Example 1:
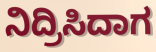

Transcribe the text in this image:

ನಿದ್ರಿಸಿದಾಗ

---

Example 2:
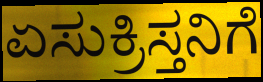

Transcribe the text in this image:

ಏಸುಕ್ರಿಸ್ತನಿಗೆ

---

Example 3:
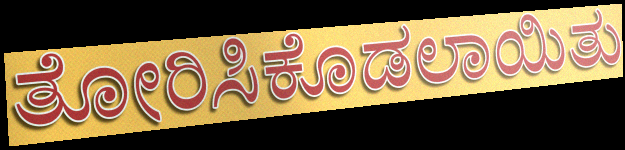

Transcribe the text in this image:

ತೋರಿಸಿಕೊಡಲಾಯಿತು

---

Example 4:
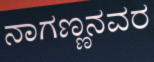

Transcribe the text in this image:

ನಾಗಣ್ಣನವರ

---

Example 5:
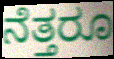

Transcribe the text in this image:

ನೆತ್ತರೂ